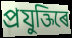
প্ৰযুক্তিৰে